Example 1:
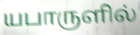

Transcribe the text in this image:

யபாருளில்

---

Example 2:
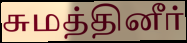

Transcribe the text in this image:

சுமத்தினீர்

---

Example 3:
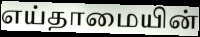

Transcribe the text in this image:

எய்தாமையின்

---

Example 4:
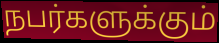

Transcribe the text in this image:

நபர்களுக்கும்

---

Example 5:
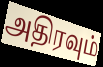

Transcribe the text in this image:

அதிரவும்